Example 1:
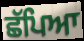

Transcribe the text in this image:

ਛੱਪਿਆ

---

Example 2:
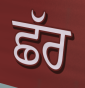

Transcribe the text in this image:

ਛੱਰ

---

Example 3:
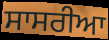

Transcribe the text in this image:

ਸਾਸਰੀਆ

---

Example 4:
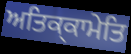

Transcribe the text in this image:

ਅਤਿਕ੍ਕਾਮੇਤਿ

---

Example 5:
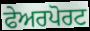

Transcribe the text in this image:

ਫੇਅਰਪੋਰਟ